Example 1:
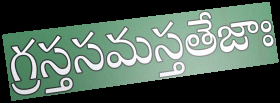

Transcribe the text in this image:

గ్రస్తసమస్తతేజాః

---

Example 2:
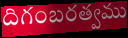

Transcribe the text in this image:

దిగంబరత్వము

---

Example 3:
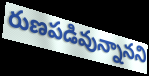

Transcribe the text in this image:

రుణపడివున్నానని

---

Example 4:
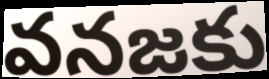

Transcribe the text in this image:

వనజకు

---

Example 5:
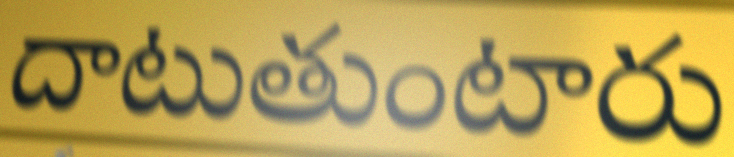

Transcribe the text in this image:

దాటుతుంటారు